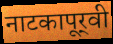
नाटकापूर्वी